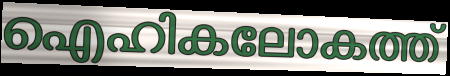
ഐഹികലോകത്ത്